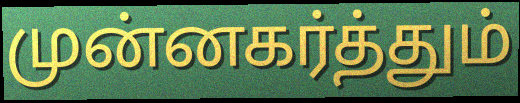
முன்னகர்த்தும்